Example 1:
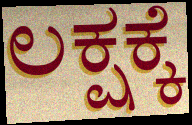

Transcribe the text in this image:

ಲಕ್ಷಕ್ಕೆ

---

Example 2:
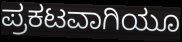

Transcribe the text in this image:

ಪ್ರಕಟವಾಗಿಯೂ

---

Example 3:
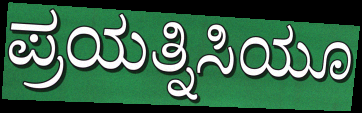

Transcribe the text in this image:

ಪ್ರಯತ್ನಿಸಿಯೂ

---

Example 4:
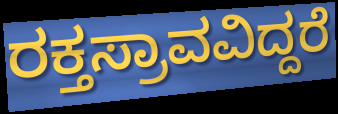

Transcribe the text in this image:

ರಕ್ತಸ್ರಾವವಿದ್ದರೆ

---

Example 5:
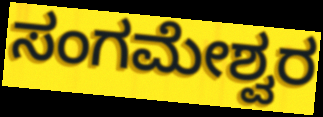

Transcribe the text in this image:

ಸಂಗಮೇಶ್ವರ